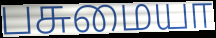
பசுமையா